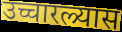
उच्चारल्यास